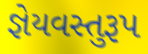
જ્ઞેયવસ્તુરૂપ